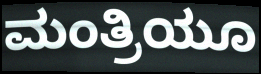
ಮಂತ್ರಿಯೂ